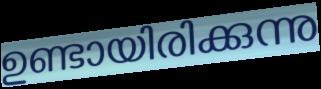
ഉണ്ടായിരിക്കുന്നു